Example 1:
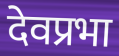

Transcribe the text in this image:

देवप्रभा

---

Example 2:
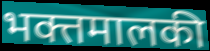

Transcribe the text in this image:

भक्तमालकी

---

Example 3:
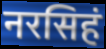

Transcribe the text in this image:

नरसिहं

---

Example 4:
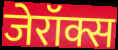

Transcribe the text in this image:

जेरॉक्स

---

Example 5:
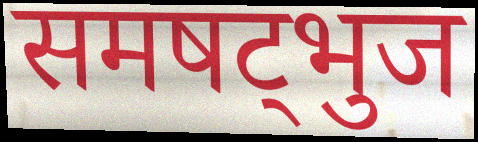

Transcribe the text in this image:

समषट्भुज